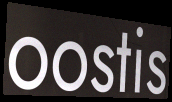
oostis